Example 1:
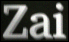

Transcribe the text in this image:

Zai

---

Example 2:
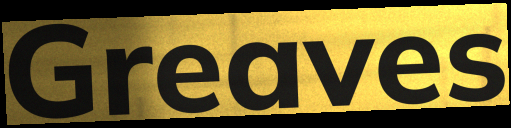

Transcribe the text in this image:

Greaves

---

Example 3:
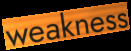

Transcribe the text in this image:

weakness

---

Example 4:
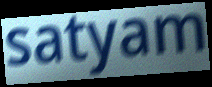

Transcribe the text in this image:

satyam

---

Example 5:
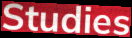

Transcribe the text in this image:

Studies